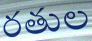
రతుల